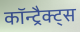
कॉन्ट्रैक्ट्स